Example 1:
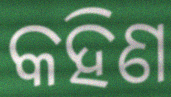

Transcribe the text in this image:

କହିଣ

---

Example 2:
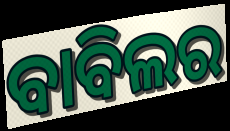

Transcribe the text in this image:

ବାବିଲର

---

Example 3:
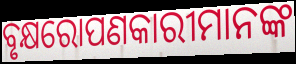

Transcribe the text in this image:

ବୃକ୍ଷରୋପଣକାରୀମାନଙ୍କ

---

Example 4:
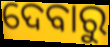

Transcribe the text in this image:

ଦେବାରୁ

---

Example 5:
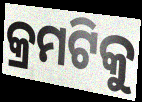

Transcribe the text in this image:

କ୍ରମଟିକୁ